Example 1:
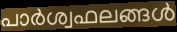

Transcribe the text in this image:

പാർശ്വഫലങ്ങൾ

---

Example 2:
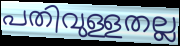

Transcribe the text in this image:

പതിവുള്ളതല്ല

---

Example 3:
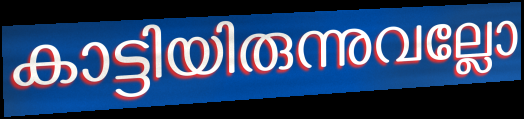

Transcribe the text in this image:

കാട്ടിയിരുന്നുവല്ലോ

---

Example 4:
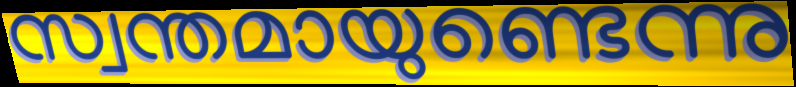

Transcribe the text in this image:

സ്വന്തമായുണ്ടെന്നു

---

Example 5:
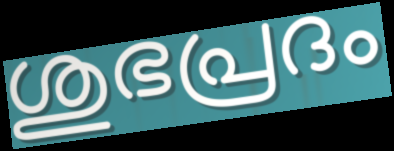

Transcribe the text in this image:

ശുഭപ്രദം